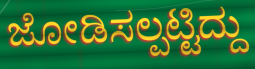
ಜೋಡಿಸಲ್ಪಟ್ಟಿದ್ದು